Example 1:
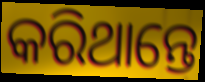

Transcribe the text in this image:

କରିଥାନ୍ତେ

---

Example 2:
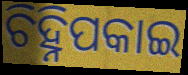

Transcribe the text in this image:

ଚିହ୍ନିପକାଇ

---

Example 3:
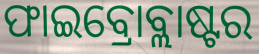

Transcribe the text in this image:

ଫାଇବ୍ରୋବ୍ଲାଷ୍ଟର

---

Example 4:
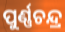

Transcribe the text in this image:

ପୁର୍ଣ୍ଣଚନ୍ଦ୍ର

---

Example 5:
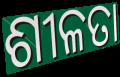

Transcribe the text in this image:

ଶୀଳତା